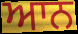
ਆਨ